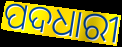
ପଦଧାରୀ